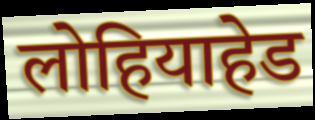
लोहियाहेड